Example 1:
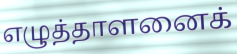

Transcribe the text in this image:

எழுத்தாளனைக்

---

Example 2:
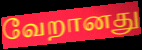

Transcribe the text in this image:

வேறானது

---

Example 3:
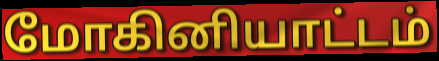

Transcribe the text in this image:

மோகினியாட்டம்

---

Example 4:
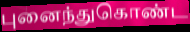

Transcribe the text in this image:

புனைந்துகொண்ட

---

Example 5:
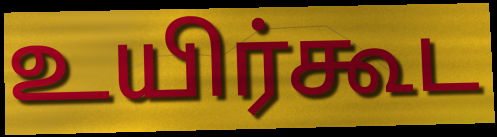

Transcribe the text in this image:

உயிர்கூட